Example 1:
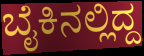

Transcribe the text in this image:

ಬೈಕಿನಲ್ಲಿದ್ದ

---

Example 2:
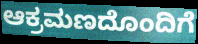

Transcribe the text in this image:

ಆಕ್ರಮಣದೊಂದಿಗೆ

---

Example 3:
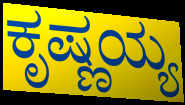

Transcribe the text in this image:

ಕೃಷ್ಣಯ್ಯ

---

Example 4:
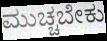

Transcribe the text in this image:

ಮುಚ್ಚಬೇಕು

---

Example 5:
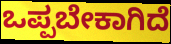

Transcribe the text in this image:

ಒಪ್ಪಬೇಕಾಗಿದೆ